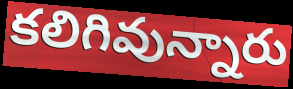
కలిగివున్నారు